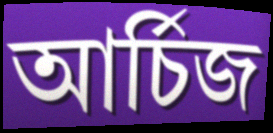
আর্চিজ